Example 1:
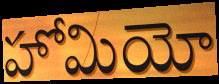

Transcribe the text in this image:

హోమియో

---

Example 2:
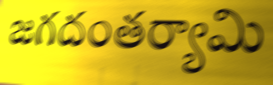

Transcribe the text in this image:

జగదంతర్యామి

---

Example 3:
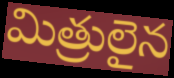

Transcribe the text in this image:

మిత్రులైన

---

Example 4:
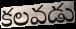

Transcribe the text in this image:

కలవడు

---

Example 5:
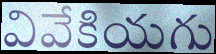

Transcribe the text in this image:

వివేకియగు